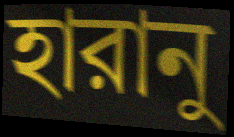
হারানু